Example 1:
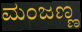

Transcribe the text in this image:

ಮಂಜಣ್ಣ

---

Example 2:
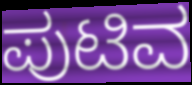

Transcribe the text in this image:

ಪುಟಿವ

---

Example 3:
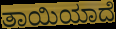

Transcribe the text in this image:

ತಾಯಿಯಾದೆ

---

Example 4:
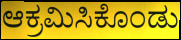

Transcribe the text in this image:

ಆಕ್ರಮಿಸಿಕೊಂಡು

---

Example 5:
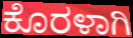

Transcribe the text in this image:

ಕೊರಳಾಗಿ